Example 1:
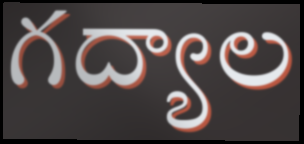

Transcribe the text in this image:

గద్యాల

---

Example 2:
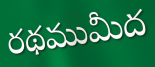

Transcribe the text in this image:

రథముమీద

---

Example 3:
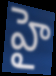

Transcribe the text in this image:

హై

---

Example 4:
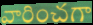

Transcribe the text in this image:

వారించగా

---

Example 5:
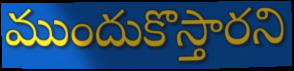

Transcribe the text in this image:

ముందుకొస్తారని